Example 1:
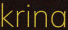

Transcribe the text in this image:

krina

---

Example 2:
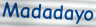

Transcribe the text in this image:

Madadayo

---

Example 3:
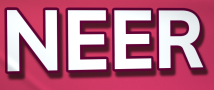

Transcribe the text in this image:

NEER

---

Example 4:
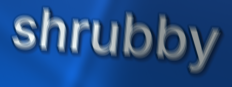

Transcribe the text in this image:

shrubby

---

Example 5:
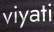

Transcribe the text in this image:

viyati